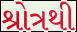
શ્રોત્રથી